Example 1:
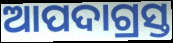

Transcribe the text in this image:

ଆପଦାଗ୍ରସ୍ତ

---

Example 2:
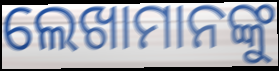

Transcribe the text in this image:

ଲେଖାମାନଙ୍କୁ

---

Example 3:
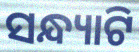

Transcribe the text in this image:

ସନ୍ଧ୍ୟାଟି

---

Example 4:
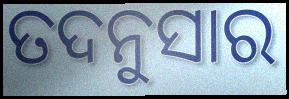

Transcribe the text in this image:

ତଦନୁସାର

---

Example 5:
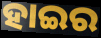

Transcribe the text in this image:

ହାଇର